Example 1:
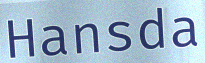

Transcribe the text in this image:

Hansda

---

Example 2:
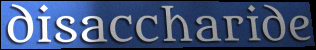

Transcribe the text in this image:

disaccharide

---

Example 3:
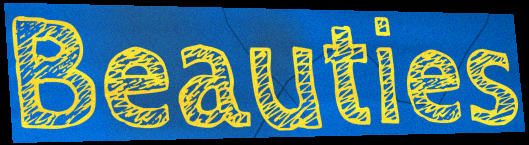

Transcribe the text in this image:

Beauties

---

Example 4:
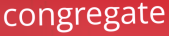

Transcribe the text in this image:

congregate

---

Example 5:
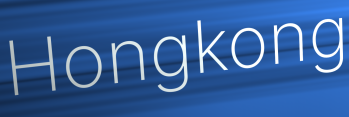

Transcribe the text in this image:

Hongkong